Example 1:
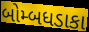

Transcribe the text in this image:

બોમ્બધડાકા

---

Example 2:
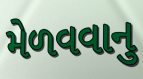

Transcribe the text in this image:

મેળવવાનુ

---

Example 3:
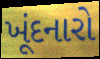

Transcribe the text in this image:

ખૂંદનારો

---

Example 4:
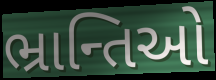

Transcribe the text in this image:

ભ્રાન્તિઓ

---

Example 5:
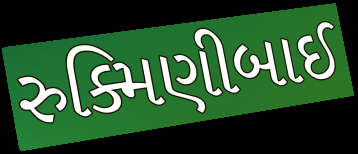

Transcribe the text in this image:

રુક્મિણીબાઈ